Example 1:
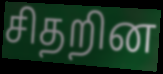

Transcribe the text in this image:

சிதறின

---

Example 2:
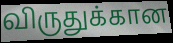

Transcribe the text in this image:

விருதுக்கான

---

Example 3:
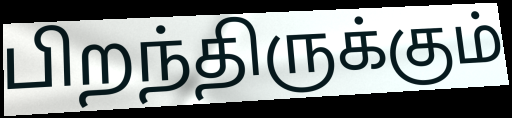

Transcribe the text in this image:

பிறந்திருக்கும்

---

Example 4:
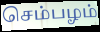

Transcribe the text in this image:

செம்பழம்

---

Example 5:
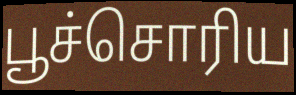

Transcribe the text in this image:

பூச்சொரிய